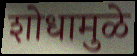
शोधामुळे